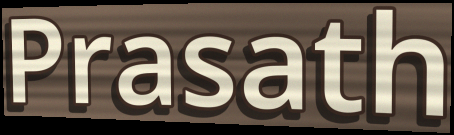
Prasath